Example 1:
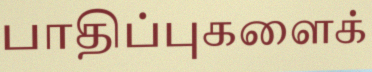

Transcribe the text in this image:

பாதிப்புகளைக்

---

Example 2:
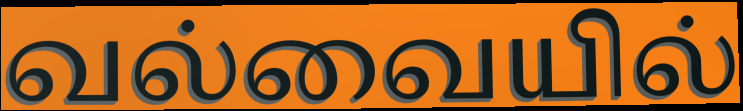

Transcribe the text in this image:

வல்வையில்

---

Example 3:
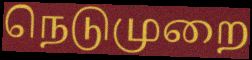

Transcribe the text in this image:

நெடுமுறை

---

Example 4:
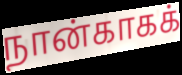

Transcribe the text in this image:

நான்காகக்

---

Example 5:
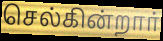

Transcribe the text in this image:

செல்கின்றார்